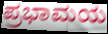
ಪ್ರಭಾಮಯ